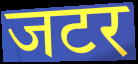
जटर